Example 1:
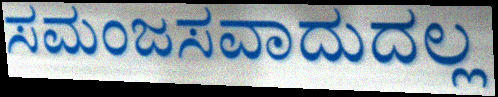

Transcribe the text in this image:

ಸಮಂಜಸವಾದುದಲ್ಲ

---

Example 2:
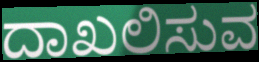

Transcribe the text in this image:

ದಾಖಲಿಸುವ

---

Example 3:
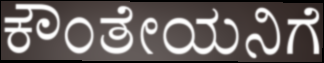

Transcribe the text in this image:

ಕೌಂತೇಯನಿಗೆ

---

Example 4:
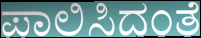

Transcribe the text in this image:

ಪಾಲಿಸಿದಂತೆ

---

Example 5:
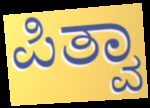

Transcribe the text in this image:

ಪಿತ್ವಾ